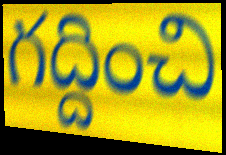
గద్దించి